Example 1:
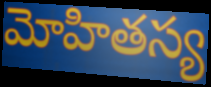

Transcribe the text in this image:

మోహితస్య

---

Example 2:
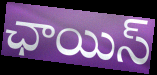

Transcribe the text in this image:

ఛాయిస్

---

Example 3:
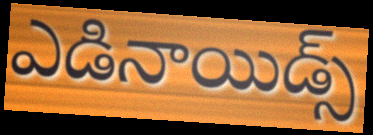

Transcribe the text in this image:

ఎడినాయిడ్స్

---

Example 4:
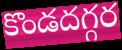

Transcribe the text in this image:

కొండదగ్గర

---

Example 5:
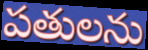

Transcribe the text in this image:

పతులను